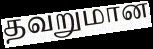
தவறுமான